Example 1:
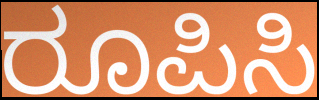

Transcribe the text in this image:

ರೂಪಿಸಿ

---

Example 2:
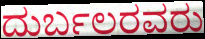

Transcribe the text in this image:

ದುರ್ಬಲರವರು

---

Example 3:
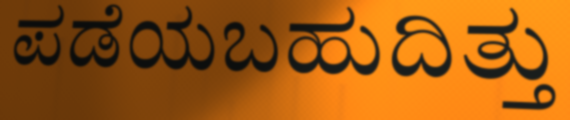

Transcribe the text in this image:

ಪಡೆಯಬಹುದಿತ್ತು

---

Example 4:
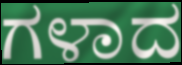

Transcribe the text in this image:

ಗಳಾದ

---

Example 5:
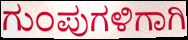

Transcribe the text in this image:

ಗುಂಪುಗಳಿಗಾಗಿ